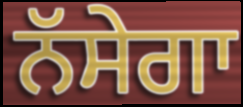
ਨੱਸੇਗਾ